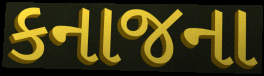
કનાજના